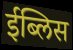
ईब्लिस